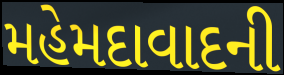
મહેમદાવાદની